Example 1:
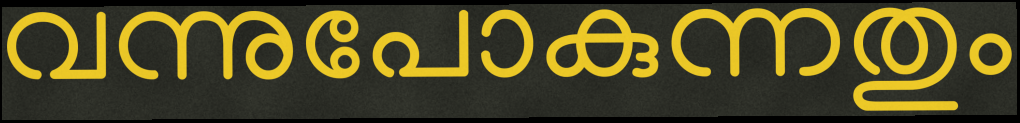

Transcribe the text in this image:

വന്നുപോകുന്നതും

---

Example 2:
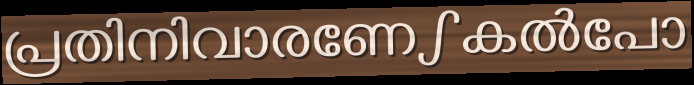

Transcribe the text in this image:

പ്രതിനിവാരണേഽകൽപോ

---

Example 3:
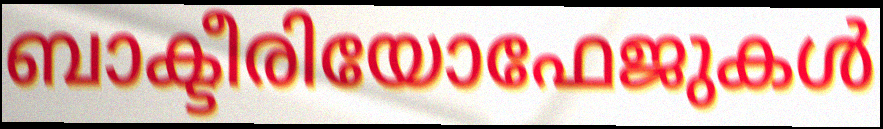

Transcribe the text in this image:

ബാക്ടീരിയോഫേജുകൾ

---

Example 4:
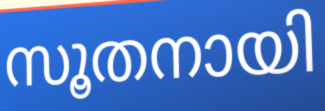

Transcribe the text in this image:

സൂതനായി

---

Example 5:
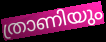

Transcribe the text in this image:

ത്രാണിയും